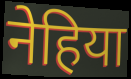
नेहिया